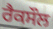
ਰੈਕਸੌਲ